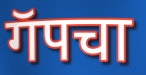
गॅपचा